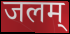
जलम्